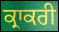
ਕ੍ਰਾਕਰੀ